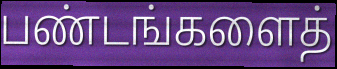
பண்டங்களைத்